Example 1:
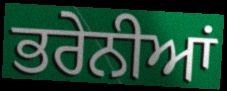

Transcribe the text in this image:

ਭਰੇਨੀਆਂ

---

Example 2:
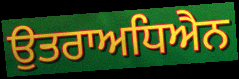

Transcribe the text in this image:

ਉਤਰਾਅਧਿਐਨ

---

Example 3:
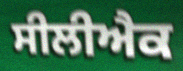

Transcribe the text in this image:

ਸੀਲੀਐਕ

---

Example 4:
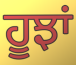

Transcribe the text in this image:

ਹੂਝਾਂ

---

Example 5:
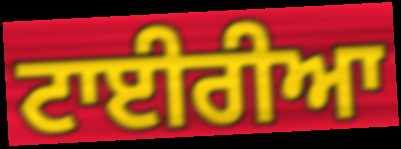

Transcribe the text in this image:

ਟਾਈਰੀਆ